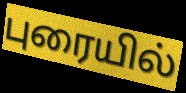
புரையில்